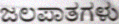
ಜಲಪಾತಗಳು